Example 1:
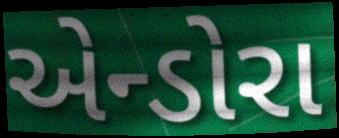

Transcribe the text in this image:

એન્ડોરા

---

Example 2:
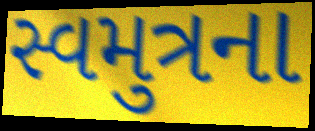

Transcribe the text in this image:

સ્વમુત્રના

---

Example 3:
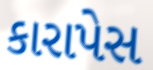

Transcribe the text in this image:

કારાપેસ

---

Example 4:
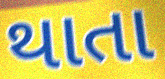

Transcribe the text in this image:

થાતા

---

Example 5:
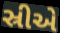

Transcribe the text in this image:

સ્રીએ